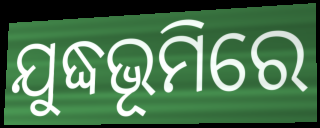
ଯୁଦ୍ଧଭୂମିରେ